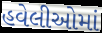
હવેલીઓમાં